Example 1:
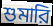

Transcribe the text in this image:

শুমারি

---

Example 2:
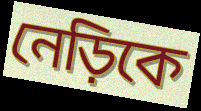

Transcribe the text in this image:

নেড়িকে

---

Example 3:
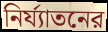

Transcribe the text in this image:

নির্য্যাতনের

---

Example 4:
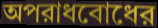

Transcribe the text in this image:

অপরাধবোধের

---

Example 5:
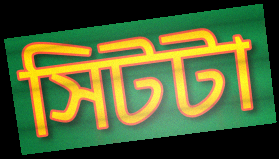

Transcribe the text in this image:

সিটটা